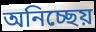
অনিচ্ছেয়